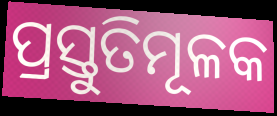
ପ୍ରସ୍ତୁତିମୂଳକ